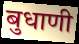
बुधाणी